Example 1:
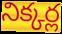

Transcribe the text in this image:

నిక్కర్ల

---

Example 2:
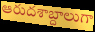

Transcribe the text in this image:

ఆరుదశాబ్దాలుగా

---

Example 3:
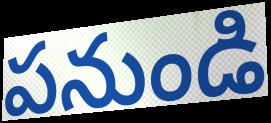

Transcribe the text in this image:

పనుండి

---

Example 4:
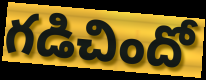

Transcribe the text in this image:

గడిచిందో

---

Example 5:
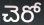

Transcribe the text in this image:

చెరో